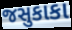
જસુકાકા